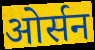
ओर्सन